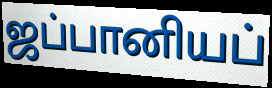
ஜப்பானியப்